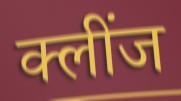
क्लींज